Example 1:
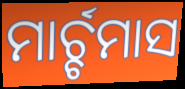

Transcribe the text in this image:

ମାର୍ଚ୍ଚମାସ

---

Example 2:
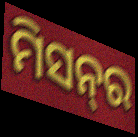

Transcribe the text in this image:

ମିସନ୍‍ର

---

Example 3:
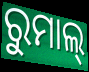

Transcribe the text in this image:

ରୁମାଲ୍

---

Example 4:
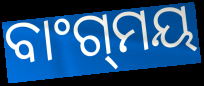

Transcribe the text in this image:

ବାଂଗ୍‌ମୟ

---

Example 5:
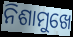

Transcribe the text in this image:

ନିଶାମୁଖେ